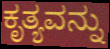
ಕೃತ್ಯವನ್ನು